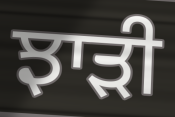
ਝਾੜੀ